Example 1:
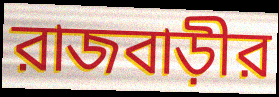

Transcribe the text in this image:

রাজবাড়ীর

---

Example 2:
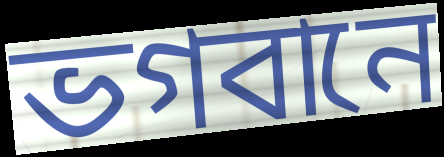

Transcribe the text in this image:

ভগবানে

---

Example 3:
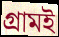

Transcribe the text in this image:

গ্রামই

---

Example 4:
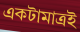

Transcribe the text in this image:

একটামাত্রই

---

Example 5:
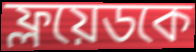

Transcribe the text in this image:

ফ্লয়েডকে